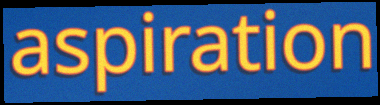
aspiration